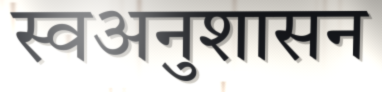
स्वअनुशासन